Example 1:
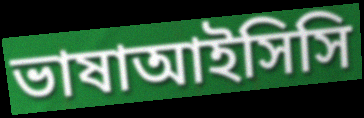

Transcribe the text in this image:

ভাষাআইসিসি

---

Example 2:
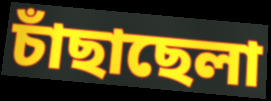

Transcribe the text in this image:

চাঁছাছেলা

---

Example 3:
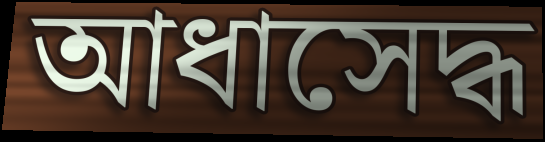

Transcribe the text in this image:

আধাসেদ্ধ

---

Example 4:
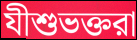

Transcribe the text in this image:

যীশুভক্তরা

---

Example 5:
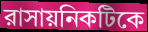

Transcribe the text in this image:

রাসায়নিকটিকে